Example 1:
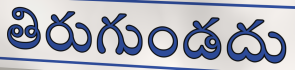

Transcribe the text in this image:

తిరుగుండదు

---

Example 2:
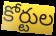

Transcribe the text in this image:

కోర్టుల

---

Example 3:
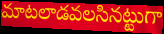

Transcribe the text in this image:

మాటలాడవలసినట్టుగా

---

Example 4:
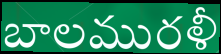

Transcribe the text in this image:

బాలమురళీ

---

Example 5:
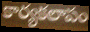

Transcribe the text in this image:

కార్యకలాపం